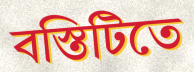
বস্তিটিতে